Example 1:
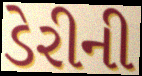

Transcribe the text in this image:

ડેરીની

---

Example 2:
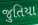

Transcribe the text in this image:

જુતિયા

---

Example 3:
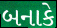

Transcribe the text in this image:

બનાકે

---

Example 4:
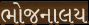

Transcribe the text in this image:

ભોજનાલય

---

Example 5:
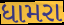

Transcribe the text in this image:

ધામરા